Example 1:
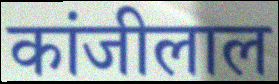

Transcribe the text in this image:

कांजीलाल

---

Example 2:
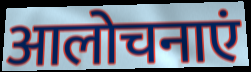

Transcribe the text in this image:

आलोचनाएं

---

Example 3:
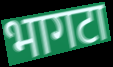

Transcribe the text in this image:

भागटा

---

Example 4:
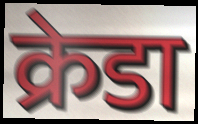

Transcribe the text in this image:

क्रेडा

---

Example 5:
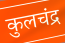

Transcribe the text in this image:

कुलचंद्र